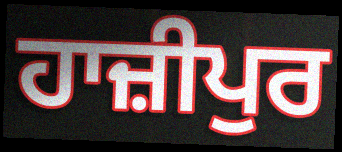
ਹਾਜ਼ੀਪੁਰ